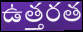
ఉత్తరత